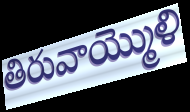
తిరువాయ్మొళి